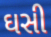
ઘસી